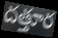
దత్తూర